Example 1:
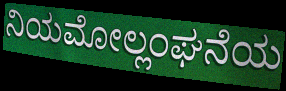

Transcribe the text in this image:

ನಿಯಮೋಲ್ಲಂಘನೆಯ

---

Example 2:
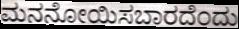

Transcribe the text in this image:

ಮನನೋಯಿಸಬಾರದೆಂದು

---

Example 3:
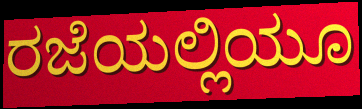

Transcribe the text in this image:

ರಜೆಯಲ್ಲಿಯೂ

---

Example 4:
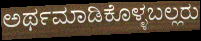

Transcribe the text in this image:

ಅರ್ಥಮಾಡಿಕೊಳ್ಳಬಲ್ಲರು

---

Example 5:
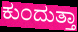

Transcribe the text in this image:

ಕುಂದುತ್ತಾ